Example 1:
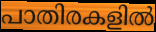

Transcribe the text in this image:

പാതിരകളിൽ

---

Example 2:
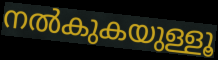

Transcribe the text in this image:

നൽകുകയുള്ളൂ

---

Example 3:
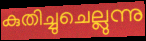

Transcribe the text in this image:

കുതിച്ചുചെല്ലുന്നു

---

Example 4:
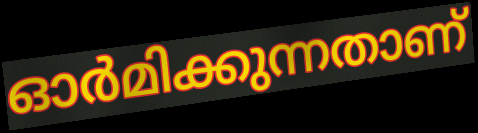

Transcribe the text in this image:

ഓർമിക്കുന്നതാണ്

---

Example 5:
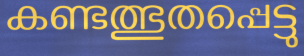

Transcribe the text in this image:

കണ്ടത്ഭുതപ്പെട്ടു